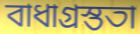
বাধাগ্ৰস্ততা